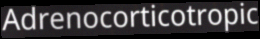
Adrenocorticotropic